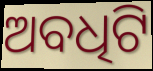
ଅବଧିଟି